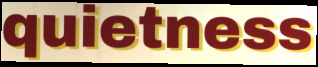
quietness